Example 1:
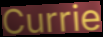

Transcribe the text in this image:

Currie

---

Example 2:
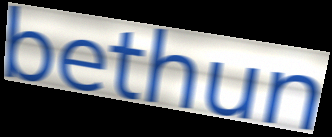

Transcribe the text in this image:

bethun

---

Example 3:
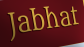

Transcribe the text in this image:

Jabhat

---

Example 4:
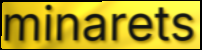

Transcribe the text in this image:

minarets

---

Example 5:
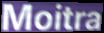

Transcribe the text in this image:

Moitra